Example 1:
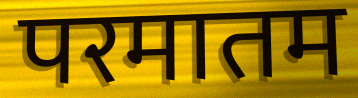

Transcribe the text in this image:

परमातम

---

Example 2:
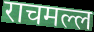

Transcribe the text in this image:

राचमल्ल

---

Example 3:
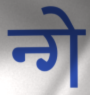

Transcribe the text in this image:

न्गे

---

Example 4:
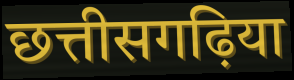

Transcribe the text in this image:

छत्तीसगढ़िया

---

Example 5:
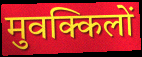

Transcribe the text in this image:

मुवक्किलों